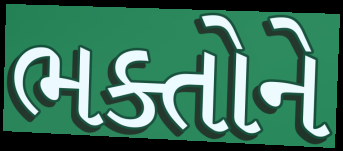
ભક્તોને